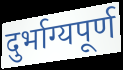
दुर्भाग्यपूर्ण